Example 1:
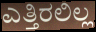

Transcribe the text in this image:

ಎತ್ತಿರಲಿಲ್ಲ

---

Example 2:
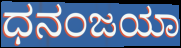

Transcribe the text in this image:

ಧನಂಜಯಾ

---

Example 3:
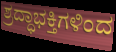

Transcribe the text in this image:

ಶ್ರದ್ಧಾಭಕ್ತಿಗಳಿಂದ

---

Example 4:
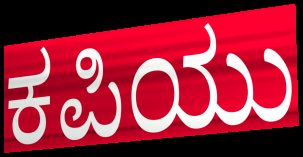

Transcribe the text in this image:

ಕಪಿಯು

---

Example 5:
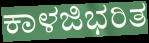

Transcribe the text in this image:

ಕಾಳಜಿಭರಿತ